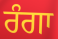
ਰੰਗਾ